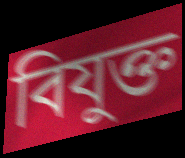
বিযুক্ত